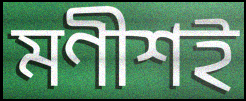
মণীশই